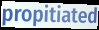
propitiated